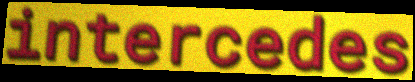
intercedes